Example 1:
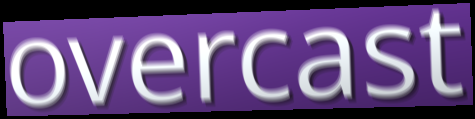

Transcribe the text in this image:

overcast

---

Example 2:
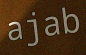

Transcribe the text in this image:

ajab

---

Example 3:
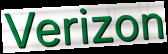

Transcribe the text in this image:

Verizon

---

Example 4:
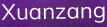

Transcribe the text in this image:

Xuanzang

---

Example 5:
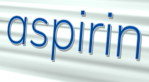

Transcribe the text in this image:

aspirin